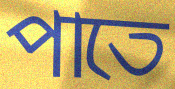
পাতে